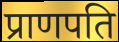
प्राणपति